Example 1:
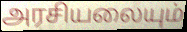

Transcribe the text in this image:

அரசியலையும்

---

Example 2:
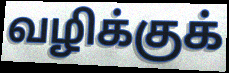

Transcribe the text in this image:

வழிக்குக்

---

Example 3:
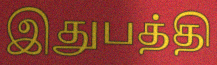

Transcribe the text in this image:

இதுபத்தி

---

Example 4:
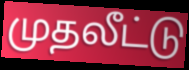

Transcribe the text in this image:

முதலீட்டு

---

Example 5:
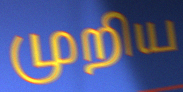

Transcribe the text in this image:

முறிய